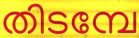
തിടമ്പേ